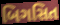
બિગસિત